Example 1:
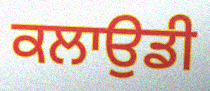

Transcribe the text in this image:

ਕਲਾਉਡੀ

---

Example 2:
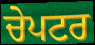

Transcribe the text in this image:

ਚੇਪਟਰ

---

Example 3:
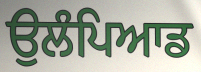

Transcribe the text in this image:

ਉਲੰਪਿਆਡ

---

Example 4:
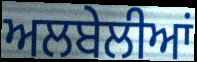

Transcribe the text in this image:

ਅਲਬੇਲੀਆਂ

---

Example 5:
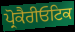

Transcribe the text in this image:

ਪ੍ਰੋਕੈਰੀਓਟਿਕ